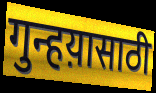
गुन्हय़ासाठी